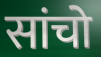
सांचो